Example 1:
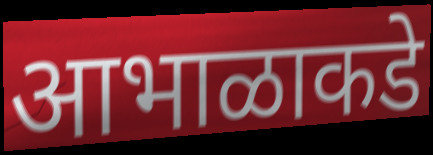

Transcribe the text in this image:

आभाळाकडे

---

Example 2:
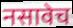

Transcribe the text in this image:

नसावेच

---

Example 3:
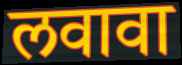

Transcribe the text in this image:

लवावा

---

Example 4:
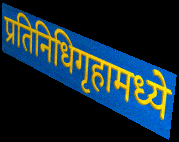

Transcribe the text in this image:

प्रतिनिधिगृहामध्ये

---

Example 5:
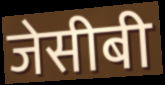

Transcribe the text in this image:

जेसीबी